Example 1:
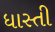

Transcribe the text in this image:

ધાસ્તી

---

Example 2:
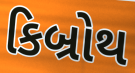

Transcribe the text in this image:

કિબ્રોથ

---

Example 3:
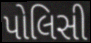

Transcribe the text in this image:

પોલિસી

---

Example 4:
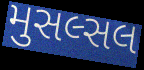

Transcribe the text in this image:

મુસલ્સલ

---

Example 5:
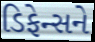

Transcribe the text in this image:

ડિફેન્સને